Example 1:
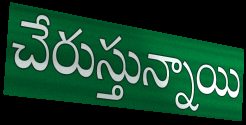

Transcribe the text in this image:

చేరుస్తున్నాయి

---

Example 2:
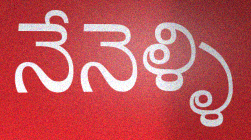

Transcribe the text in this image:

నేనెళ్ళి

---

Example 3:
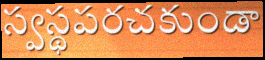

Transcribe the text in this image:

స్వస్థపరచకుండా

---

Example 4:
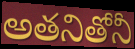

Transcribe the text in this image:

అతనితోనీ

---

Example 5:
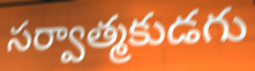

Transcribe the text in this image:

సర్వాత్మకుడగు